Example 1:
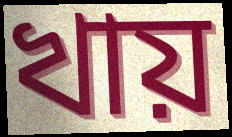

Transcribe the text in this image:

খায়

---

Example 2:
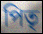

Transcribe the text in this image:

পিতৃ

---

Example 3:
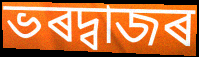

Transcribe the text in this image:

ভৰদ্বাজৰ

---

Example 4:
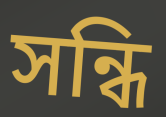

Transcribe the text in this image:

সন্ধি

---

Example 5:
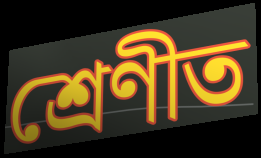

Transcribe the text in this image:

শ্ৰেণীত